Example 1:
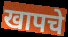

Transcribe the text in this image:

खापचे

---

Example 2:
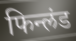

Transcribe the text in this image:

फिन्लंड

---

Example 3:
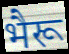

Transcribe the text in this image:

भैरू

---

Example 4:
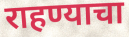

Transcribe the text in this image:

राहण्याचा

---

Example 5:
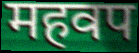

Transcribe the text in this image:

महवप